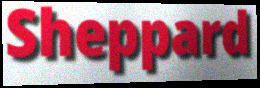
Sheppard